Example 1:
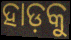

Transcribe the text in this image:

ହାଡ଼କୁ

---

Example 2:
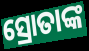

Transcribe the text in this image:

ସ୍ରୋତାଙ୍କ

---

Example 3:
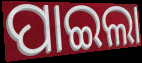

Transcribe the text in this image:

ପାଇଲା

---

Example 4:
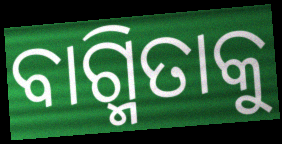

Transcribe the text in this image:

ବାଗ୍ମିତାକୁ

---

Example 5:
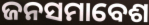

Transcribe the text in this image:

ଜନସମାବେଶ